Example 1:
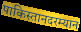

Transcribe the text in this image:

पाकिस्तानदरम्यान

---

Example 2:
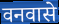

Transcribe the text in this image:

वनवासे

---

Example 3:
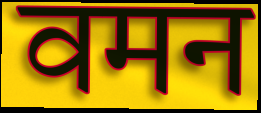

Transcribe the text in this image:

वमन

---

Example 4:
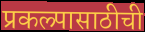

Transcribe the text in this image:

प्रकल्पासाठीची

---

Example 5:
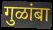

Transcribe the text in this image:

गुळांबा